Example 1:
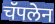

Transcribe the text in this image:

चॅपलेन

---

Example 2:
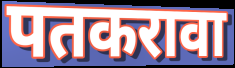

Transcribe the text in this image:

पतकरावा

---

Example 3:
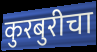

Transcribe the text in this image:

कुरबुरीचा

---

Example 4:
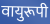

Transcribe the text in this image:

वायुरूपी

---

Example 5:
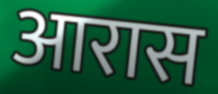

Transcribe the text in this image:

आरास